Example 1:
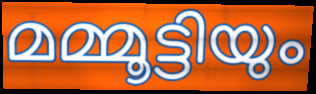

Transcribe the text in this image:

മമ്മൂട്ടിയും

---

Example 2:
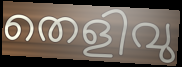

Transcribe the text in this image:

തെളിവു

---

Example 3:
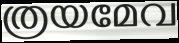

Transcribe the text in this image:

ത്രയമേവ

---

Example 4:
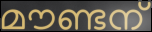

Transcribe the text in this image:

മൗണ്ടന്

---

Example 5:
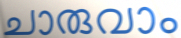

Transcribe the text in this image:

ചാരുവാം